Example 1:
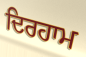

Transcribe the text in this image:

ਦਿਰਹਾਮ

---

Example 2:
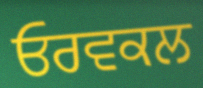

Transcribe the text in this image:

ਓਰਵਕਲ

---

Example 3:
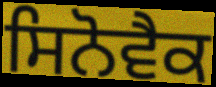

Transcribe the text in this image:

ਸਿਨੋਵੈਕ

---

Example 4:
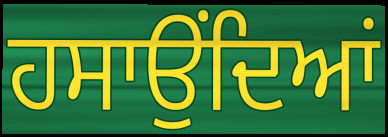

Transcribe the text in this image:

ਹਸਾਉਂਦਿਆਂ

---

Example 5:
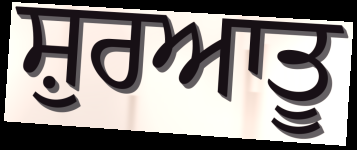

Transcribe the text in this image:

ਸ਼ੁਰਆਤੂ